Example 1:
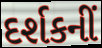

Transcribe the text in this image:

દર્શકનીં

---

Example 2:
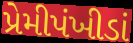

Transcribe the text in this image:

પ્રેમીપંખીડાં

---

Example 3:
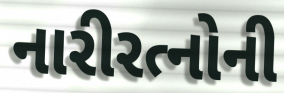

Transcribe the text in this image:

નારીરત્નોની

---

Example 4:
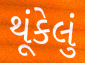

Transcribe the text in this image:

થૂંકેલું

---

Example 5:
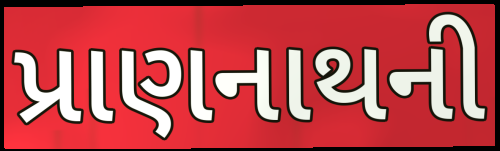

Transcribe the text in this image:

પ્રાણનાથની